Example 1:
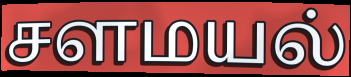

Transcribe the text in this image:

சளமயல்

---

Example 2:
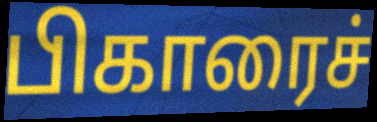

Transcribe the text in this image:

பிகாரைச்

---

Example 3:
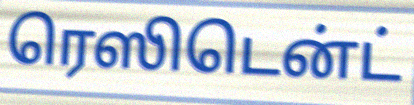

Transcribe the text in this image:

ரெஸிடென்ட்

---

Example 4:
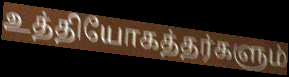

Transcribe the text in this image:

உத்தியோகத்தர்களும்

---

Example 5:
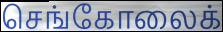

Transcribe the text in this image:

செங்கோலைக்